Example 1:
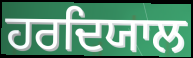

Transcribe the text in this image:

ਹਰਦਿਯਾਲ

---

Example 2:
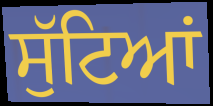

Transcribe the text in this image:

ਸੁੱਟਿਆਂ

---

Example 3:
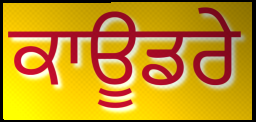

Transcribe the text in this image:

ਕਾਊਡਰੇ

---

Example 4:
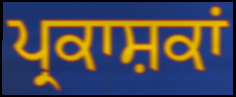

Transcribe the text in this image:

ਪ੍ਰਕਾਸ਼ਕਾਂ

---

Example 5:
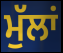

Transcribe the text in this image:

ਮੁੱਲਾਂ